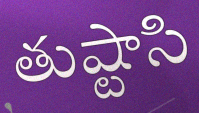
తుష్టాసి